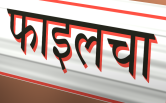
फाइलचा